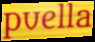
puella